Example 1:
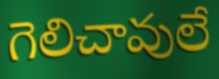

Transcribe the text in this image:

గెలిచావులే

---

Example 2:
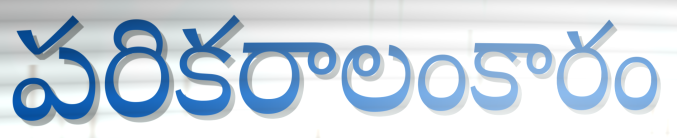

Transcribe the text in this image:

పరికరాలంకారం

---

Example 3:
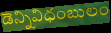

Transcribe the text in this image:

డెన్నివిధంబులం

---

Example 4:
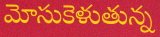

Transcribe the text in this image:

మోసుకెళుతున్న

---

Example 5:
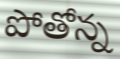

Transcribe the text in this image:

పోతోన్న